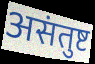
असंतुष्ट